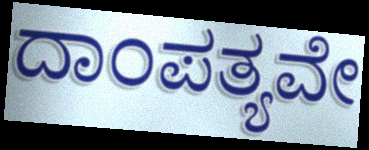
ದಾಂಪತ್ಯವೇ